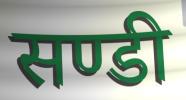
सण्डी